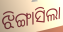
ଝିଙ୍ଗାସିଲା